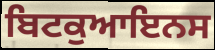
ਬਿਟਕੁਆਇਨਸ